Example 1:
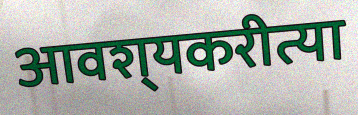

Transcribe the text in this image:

आवश्यकरीत्या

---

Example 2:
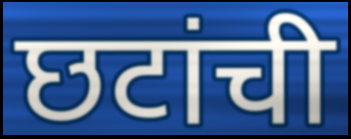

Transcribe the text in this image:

छटांची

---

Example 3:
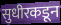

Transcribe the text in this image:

सुधीरकडून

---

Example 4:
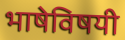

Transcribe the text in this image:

भाषेविषयी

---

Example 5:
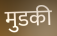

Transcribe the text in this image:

मुडकी